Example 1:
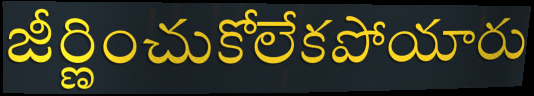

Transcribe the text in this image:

జీర్ణించుకోలేకపోయారు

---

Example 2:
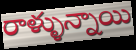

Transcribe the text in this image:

రాళ్ళున్నాయి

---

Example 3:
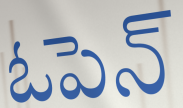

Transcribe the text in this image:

ఓపెన్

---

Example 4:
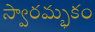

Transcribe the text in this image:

స్వారమ్భకం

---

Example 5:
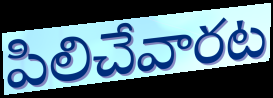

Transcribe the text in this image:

పిలిచేవారట